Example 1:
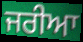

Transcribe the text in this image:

ਜਰੀਆ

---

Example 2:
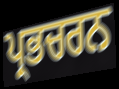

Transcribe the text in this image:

ਪ੍ਰਭਚਰਨ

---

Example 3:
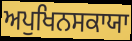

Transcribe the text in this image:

ਅਪੁਖਿਨਸਕਾਯਾ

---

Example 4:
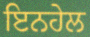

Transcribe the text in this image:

ਇਨਹੇਲ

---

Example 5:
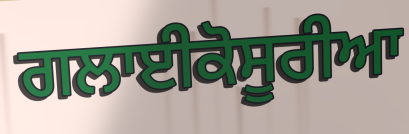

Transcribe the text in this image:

ਗਲਾਈਕੋਸੂਰੀਆ